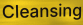
Cleansing